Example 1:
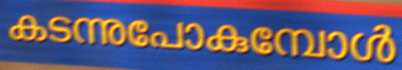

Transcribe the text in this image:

കടന്നുപോകുമ്പോൾ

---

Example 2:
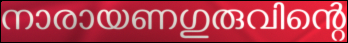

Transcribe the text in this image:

നാരായണഗുരുവിന്റെ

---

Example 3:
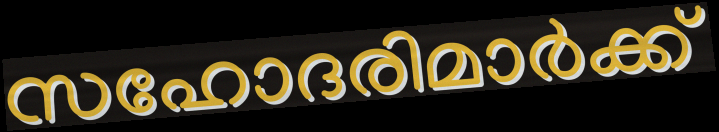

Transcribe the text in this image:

സഹോദരിമാർക്ക്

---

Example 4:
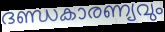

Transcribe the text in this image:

ദണ്ഡകാരണ്യവും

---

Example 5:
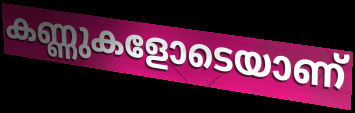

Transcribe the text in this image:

കണ്ണുകളോടെയാണ്